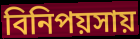
বিনিপয়সায়